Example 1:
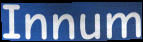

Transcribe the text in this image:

Innum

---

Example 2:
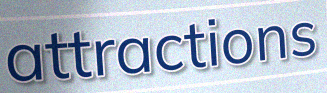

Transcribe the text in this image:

attractions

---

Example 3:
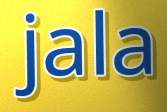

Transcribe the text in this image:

jala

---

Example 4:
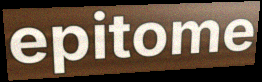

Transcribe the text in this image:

epitome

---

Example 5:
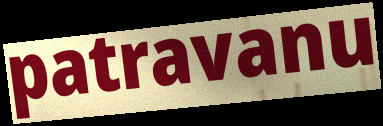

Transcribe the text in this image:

patravanu